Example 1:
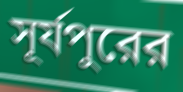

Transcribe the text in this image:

সূর্যপুরের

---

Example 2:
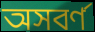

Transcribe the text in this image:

অসবর্ণ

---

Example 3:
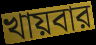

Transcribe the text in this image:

খায়বার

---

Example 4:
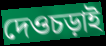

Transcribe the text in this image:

দেওচড়াই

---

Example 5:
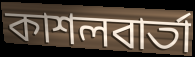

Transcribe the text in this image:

কাশলবার্তা